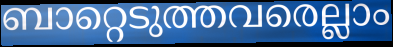
ബാറ്റെടുത്തവരെല്ലാം